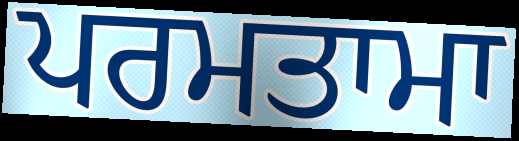
ਪਰਮਤਾਮਾ